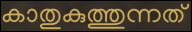
കാതുകുത്തുന്നത്